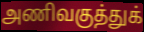
அணிவகுத்துக்